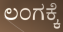
ಲಂಗಕ್ಕೆ